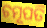
ଚମୂପତି